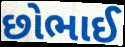
છોભાઈ